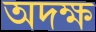
অদক্ষ